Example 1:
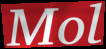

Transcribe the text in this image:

Mol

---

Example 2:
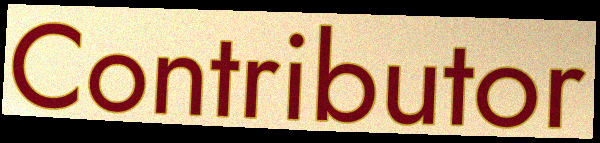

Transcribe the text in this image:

Contributor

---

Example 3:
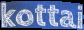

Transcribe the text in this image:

kottai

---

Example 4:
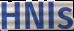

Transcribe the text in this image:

HNIs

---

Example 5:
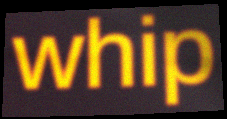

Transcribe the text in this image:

whip